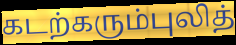
கடற்கரும்புலித்